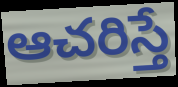
ఆచరిస్తే